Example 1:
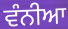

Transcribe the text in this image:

ਵੰਨੀਆ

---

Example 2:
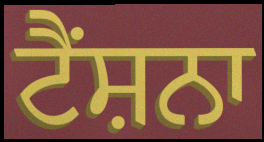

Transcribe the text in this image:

ਟੈਂਸ਼ਨਾ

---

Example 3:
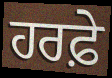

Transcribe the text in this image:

ਹਰਫ਼ੇ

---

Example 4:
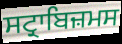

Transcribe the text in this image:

ਸਟ੍ਰਾਬਿਜ਼ਮਸ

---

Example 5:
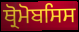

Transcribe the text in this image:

ਥ੍ਰੋਮੋਬਸਿਸ